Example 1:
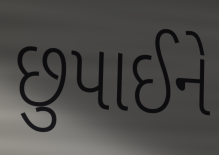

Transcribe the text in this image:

છુપાઈને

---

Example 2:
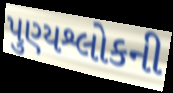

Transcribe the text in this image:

પુણ્યશ્લોકની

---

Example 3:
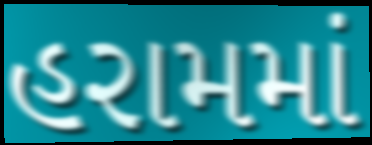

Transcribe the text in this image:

હરામમાં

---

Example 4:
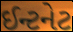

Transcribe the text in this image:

ઈન્ટનેટ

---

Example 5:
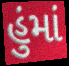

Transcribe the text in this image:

હુંમાં